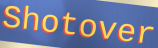
Shotover